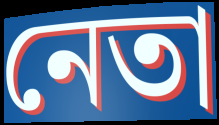
নেতা